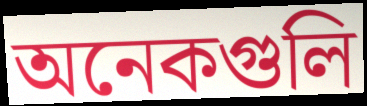
অনেকগুলি